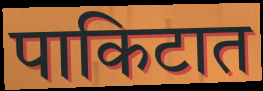
पाकिटात